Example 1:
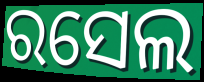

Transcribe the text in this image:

ରସେଲ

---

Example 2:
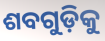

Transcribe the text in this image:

ଶବଗୁଡ଼ିକୁ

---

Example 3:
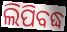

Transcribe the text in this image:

ଲିପିବଦ୍ଧ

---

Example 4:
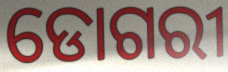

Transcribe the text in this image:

ଡୋଗରୀ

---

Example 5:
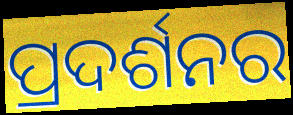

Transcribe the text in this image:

ପ୍ରଦର୍ଶନର